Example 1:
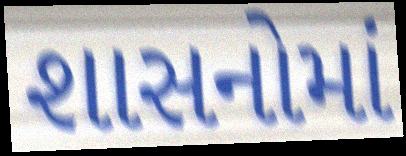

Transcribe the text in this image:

શાસનોમાં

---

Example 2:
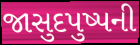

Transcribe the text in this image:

જાસુદપુષ્પની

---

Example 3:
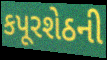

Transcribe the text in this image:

કપૂરશેઠની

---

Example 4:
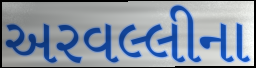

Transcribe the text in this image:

અરવલ્લીના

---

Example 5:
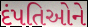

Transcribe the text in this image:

દંપતિઓને